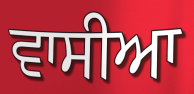
ਵਾਸੀਆ